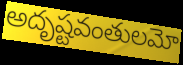
అదృష్టవంతులమో